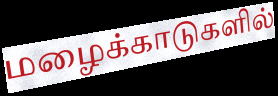
மழைக்காடுகளில்